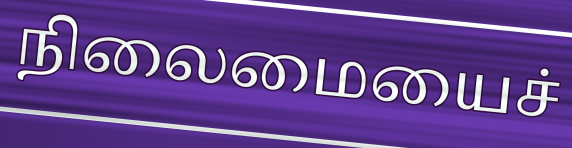
நிலைமையைச்